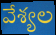
వేశ్యల